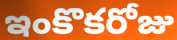
ఇంకొకరోజు